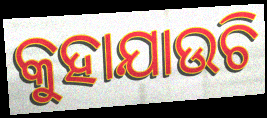
କୁହାଯାଉଚି